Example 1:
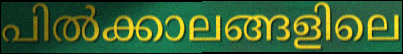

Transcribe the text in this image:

പിൽക്കാലങ്ങളിലെ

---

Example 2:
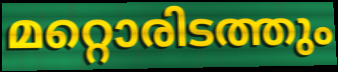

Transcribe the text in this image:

മറ്റൊരിടത്തും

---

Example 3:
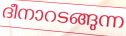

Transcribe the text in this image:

ദീനാറടങ്ങുന്ന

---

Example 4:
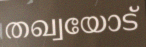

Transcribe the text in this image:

തഖ്വയോട്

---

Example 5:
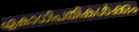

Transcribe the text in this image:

ഏകാധിപതികൾക്കും